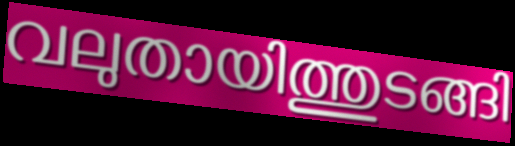
വലുതായിത്തുടങ്ങി